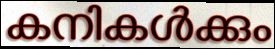
കനികൾക്കും